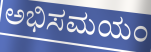
ಅಭಿಸಮಯಂ